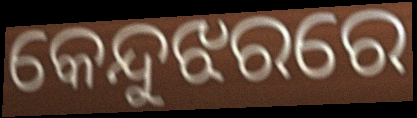
କେନ୍ଦୁଝରରେ